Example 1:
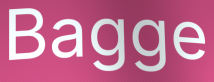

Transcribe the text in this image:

Bagge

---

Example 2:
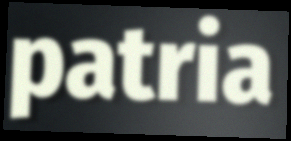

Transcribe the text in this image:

patria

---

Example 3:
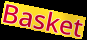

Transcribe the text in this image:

Basket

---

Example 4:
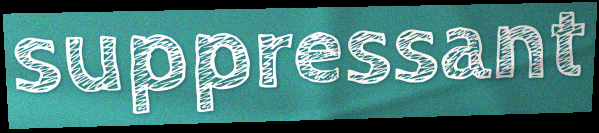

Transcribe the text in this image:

suppressant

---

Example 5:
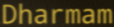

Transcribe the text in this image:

Dharmam